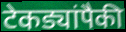
टेकड्यांपैकी